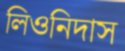
লিওনিদাস